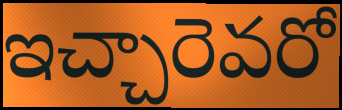
ఇచ్చారెవరో